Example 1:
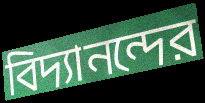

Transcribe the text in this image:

বিদ্যানন্দের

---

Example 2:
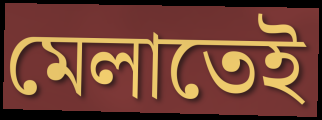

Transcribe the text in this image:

মেলাতেই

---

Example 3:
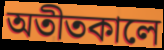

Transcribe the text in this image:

অতীতকালে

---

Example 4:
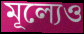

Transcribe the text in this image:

মূল্যেও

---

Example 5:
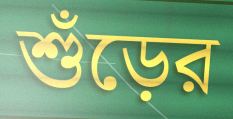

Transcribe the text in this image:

শুঁড়ের